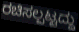
ರಚಿಸಲ್ಪಟ್ಟದ್ದು